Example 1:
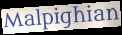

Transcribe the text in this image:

Malpighian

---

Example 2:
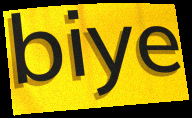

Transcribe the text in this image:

biye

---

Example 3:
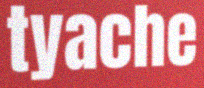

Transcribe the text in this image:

tyache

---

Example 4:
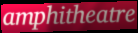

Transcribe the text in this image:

amphitheatre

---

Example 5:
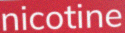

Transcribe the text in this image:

nicotine